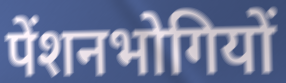
पेंशनभोगियों